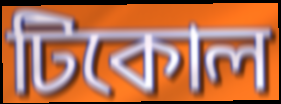
টিকোল